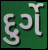
દુર્ગે